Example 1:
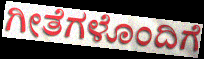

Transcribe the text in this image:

ಗೀತೆಗಳೊಂದಿಗೆ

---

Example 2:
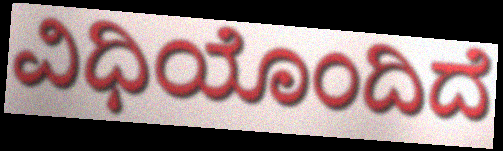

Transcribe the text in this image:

ವಿಧಿಯೊಂದಿದೆ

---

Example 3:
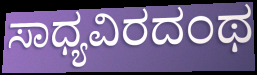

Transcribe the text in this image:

ಸಾಧ್ಯವಿರದಂಥ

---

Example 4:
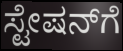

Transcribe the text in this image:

ಸ್ಟೇಷನ್‍ಗೆ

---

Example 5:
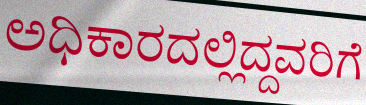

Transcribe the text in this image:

ಅಧಿಕಾರದಲ್ಲಿದ್ದವರಿಗೆ